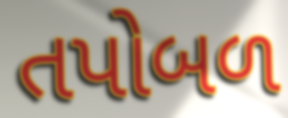
તપોબળ